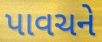
પાવચને